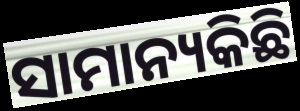
ସାମାନ୍ୟକିଛି